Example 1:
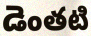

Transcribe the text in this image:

డెంతటి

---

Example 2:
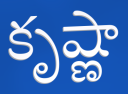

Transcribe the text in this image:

కృష్ణా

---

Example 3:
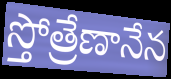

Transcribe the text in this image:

స్తోత్రేణానేన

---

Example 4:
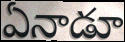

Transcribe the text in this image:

ఏనాడూ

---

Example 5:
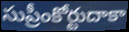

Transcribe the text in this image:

సుప్రీంకోర్టుదాకా